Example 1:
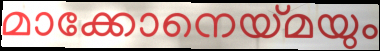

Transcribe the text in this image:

മാക്കോനെയ്മയും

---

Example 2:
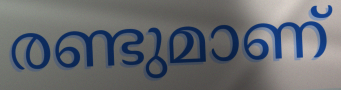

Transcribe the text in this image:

രണ്ടുമാണ്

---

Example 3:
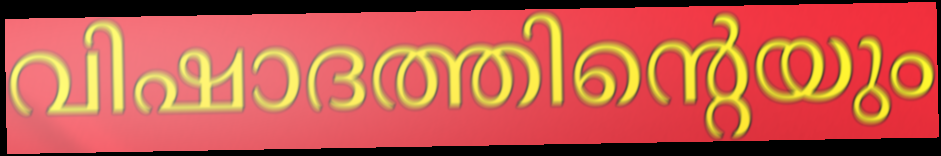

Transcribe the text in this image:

വിഷാദത്തിന്റെയും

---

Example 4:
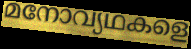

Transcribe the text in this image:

മനോവ്യഥകളെ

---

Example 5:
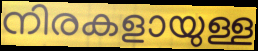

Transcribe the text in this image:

നിരകളായുള്ള